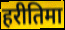
हरीतिमा